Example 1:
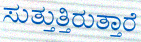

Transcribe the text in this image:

ಸುತ್ತುತ್ತಿರುತ್ತಾರೆ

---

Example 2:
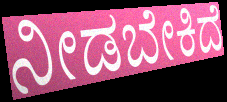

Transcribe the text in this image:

ನೀಡಬೇಕಿದೆ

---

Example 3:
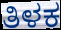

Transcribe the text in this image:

ತಿಳಕ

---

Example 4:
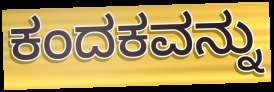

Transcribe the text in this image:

ಕಂದಕವನ್ನು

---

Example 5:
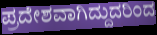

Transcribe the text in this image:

ಪ್ರದೇಶವಾಗಿದ್ದುದರಿಂದ